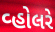
વ્હોલરે